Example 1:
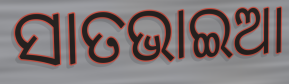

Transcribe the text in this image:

ସାତଭାଇଆ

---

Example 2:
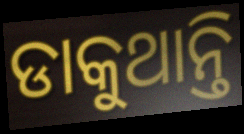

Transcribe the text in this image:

ଡାକୁଥାନ୍ତି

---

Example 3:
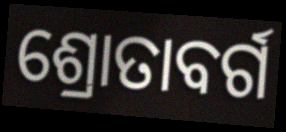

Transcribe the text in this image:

ଶ୍ରୋତାବର୍ଗ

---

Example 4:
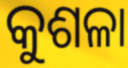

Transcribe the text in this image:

କୁଶଳା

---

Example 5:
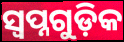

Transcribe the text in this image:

ସ୍ଵପ୍ନଗୁଡ଼ିକ